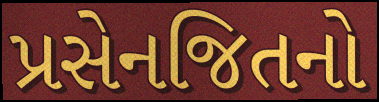
પ્રસેનજિતનો